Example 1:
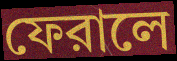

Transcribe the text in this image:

ফেরালে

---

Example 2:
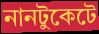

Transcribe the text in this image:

নানটুকেটে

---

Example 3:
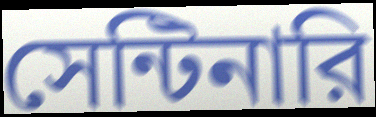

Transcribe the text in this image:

সেন্টিনারি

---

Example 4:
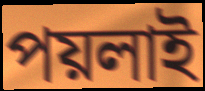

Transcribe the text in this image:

পয়লাই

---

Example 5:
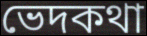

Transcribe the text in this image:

ভেদকথা